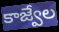
కాజ్వేల